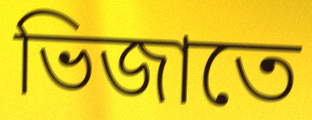
ভিজাতে